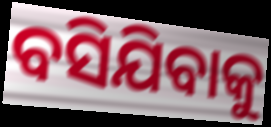
ବସିଯିବାକୁ